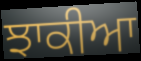
ਝਾਕੀਆ